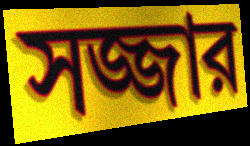
সজ্জার